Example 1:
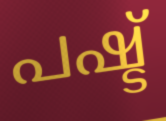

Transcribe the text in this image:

പഷ്ട്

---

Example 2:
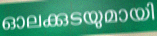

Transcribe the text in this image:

ഓലക്കുടയുമായി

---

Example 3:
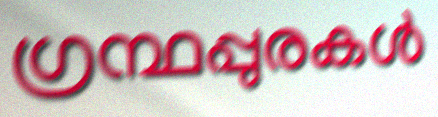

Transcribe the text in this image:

ഗ്രന്ഥപ്പുരകൾ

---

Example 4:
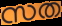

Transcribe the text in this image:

സത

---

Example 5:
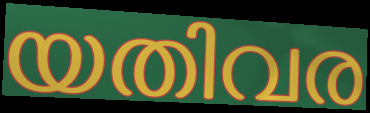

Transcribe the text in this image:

യതിവര